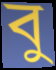
বু